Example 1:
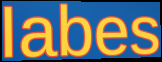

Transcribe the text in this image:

Iabes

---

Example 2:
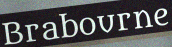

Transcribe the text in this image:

Brabourne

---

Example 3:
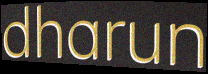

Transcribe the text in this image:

dharun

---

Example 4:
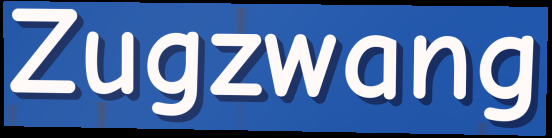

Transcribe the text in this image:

Zugzwang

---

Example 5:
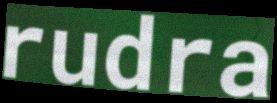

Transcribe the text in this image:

rudra